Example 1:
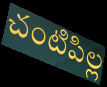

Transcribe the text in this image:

చంటిపిల్ల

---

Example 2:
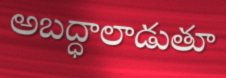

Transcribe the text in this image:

అబద్ధాలాడుతూ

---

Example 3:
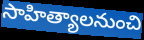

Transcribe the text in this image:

సాహిత్యాలనుంచి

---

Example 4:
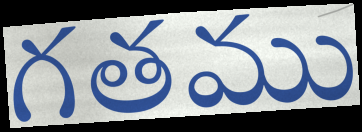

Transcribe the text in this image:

గతము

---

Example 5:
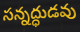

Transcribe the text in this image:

సన్నద్ధుడవు